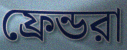
ফ্রেন্ডরা